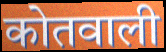
कोतवाली